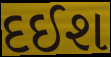
દઈશ